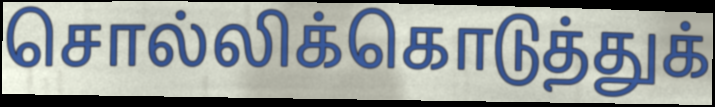
சொல்லிக்கொடுத்துக்